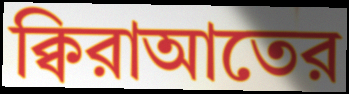
ক্বিরাআতের